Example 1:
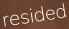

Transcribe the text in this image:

resided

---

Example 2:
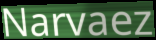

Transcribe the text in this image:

Narvaez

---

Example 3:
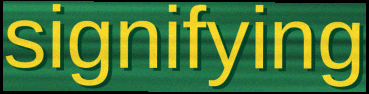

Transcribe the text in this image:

signifying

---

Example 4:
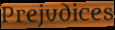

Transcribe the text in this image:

Prejudices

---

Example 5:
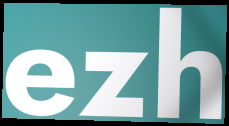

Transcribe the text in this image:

ezh